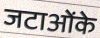
जटाओंके